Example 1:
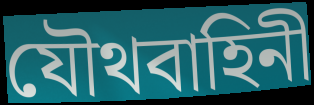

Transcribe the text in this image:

যৌথবাহিনী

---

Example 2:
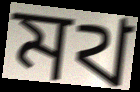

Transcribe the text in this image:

মথ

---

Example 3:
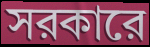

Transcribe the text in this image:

সরকারে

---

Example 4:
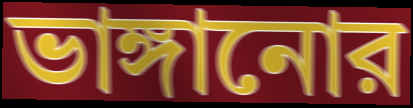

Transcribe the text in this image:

ভাঙ্গানোর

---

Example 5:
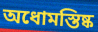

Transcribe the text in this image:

অধোমস্তিষ্ক